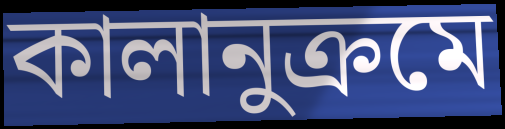
কালানুক্রমে